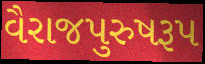
વૈરાજપુરુષરૂપ